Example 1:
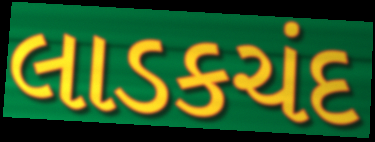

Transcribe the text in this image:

લાડકચંદ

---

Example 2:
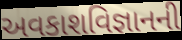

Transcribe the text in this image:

અવકાશવિજ્ઞાનની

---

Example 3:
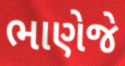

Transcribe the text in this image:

ભાણેજે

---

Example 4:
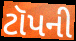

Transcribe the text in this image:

ટૉપની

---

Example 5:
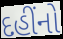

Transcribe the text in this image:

દહીંનો